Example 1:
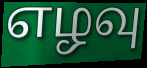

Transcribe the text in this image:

எழவு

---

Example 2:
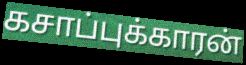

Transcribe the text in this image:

கசாப்புக்காரன்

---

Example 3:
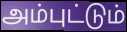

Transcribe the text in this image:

அம்புட்டும்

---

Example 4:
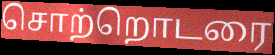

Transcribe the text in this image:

சொற்றொடரை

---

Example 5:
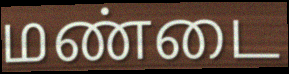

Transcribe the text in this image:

மண்டை